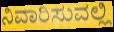
ನಿವಾರಿಸುವಲ್ಲಿ